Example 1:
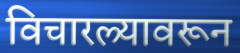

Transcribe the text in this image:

विचारल्यावरून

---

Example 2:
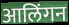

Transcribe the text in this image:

आलिंगन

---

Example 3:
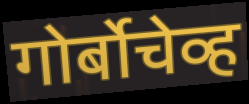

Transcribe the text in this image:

गोर्बोचेव्ह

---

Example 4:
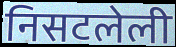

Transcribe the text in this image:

निसटलेली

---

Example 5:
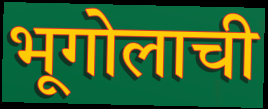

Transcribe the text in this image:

भूगोलाची